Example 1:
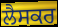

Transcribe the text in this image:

ਲੈਸਕਰ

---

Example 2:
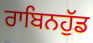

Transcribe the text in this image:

ਰਾਬਿਨਹੁੱਡ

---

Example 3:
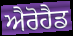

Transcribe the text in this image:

ਐਰੋਹੈਡ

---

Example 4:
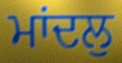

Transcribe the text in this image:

ਮਾਂਦਲੁ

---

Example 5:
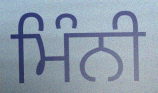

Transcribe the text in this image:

ਮਿੰਨੀ